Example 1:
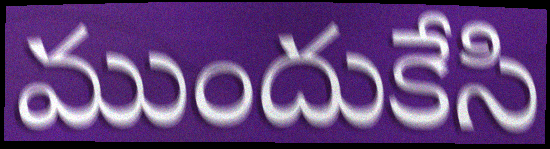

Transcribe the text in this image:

ముందుకేసి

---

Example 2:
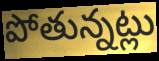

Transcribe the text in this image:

పోతున్నట్లు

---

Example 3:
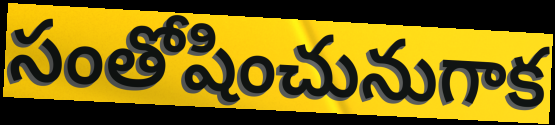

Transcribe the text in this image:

సంతోషించునుగాక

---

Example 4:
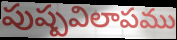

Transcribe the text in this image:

పుష్పవిలాపము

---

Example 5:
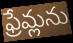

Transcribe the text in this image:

ఫ్రేమ్లను